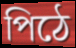
পিঠে